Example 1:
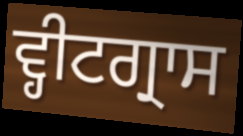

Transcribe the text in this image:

ਵ੍ਹੀਟਗ੍ਰਾਸ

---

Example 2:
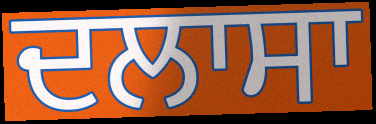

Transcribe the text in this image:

ਦਲਾਸਾ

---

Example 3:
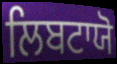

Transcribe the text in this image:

ਲਿਬਟਾਯੋ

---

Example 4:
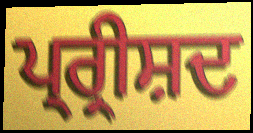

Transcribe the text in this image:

ਪ੍ਰ੍ਰੀਸ਼ਦ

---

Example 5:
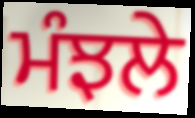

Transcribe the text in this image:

ਮੰਝਲੇ